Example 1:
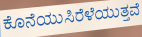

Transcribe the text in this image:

ಕೊನೆಯುಸಿರೆಳೆಯುತ್ತವೆ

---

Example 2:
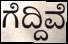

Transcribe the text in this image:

ಗೆದ್ದಿವೆ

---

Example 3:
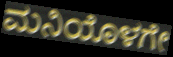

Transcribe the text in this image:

ಮನಿಯೊಳಗೇ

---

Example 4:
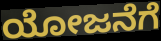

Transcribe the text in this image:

ಯೋಜನೆಗೆ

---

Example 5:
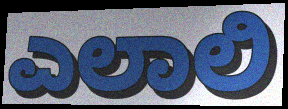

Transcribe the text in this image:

ಎಲಾಲಿ